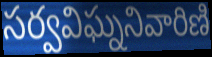
సర్వవిఘ్ననివారిణి